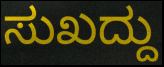
ಸುಖದ್ದು